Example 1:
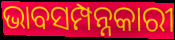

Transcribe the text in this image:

ଭାବସମ୍ପନ୍ନକାରୀ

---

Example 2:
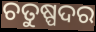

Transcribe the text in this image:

ଚତୁଷ୍ପଦର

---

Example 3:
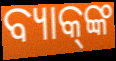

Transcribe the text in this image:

ବ୍ୟାକ୍‍ଙ୍କ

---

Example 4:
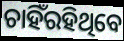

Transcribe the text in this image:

ଚାହିଁରହିଥିବେ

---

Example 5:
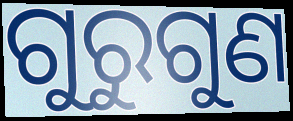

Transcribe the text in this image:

ଗୁରୁଗୁଣ